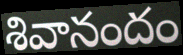
శివానందం